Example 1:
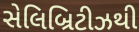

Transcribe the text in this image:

સેલિબ્રિટીઝથી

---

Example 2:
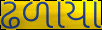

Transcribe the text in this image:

ઢળાયા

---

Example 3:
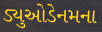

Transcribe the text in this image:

ડ્યુઓડેનમના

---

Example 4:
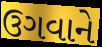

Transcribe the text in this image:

ઉગવાને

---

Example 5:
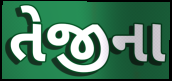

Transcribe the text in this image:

તેજીના